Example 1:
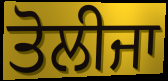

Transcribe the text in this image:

ਤੋਲੀਜਾ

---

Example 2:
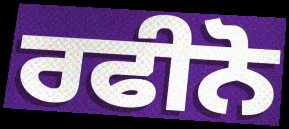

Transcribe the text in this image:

ਰਫੀਨੋ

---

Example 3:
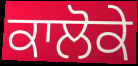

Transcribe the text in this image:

ਕਾਲੋਕੇ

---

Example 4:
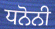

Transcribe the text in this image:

ਧਨੋਨੀ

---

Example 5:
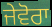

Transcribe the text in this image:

ਜੇਵੋਰਾ